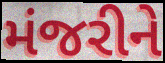
મંજરીને